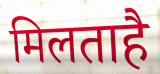
मिलताहै